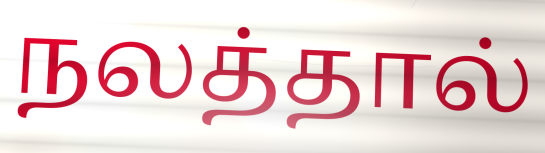
நலத்தால்